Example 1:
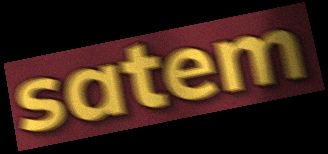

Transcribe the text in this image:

satem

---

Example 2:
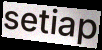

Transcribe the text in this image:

setiap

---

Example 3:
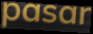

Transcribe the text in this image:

pasar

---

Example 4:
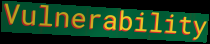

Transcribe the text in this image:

Vulnerability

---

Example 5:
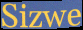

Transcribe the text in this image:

Sizwe